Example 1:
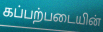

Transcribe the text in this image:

கப்பற்படையின்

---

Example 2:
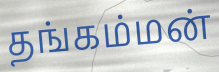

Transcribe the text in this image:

தங்கம்மன்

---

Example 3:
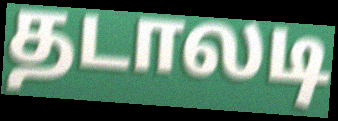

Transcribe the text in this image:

தடாலடி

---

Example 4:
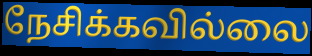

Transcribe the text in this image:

நேசிக்கவில்லை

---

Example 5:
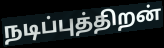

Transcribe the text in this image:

நடிப்புத்திறன்